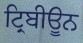
ਟ੍ਰਿਬੀਊਨ